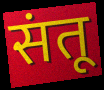
संतू